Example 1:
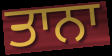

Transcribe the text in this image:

ਤਾਨਾ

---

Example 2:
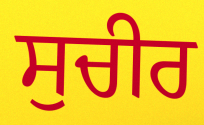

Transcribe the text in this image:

ਸੁਚੀਰ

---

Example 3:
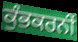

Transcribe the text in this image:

ਕੁੰਭਕਰਨੀਂ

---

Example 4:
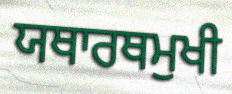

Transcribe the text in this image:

ਯਥਾਰਥਮੁਖੀ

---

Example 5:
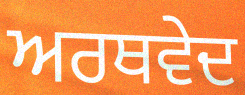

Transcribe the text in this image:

ਅਰਥਵੇਦ